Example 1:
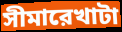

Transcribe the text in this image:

সীমারেখাটা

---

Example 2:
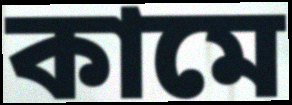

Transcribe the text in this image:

কামে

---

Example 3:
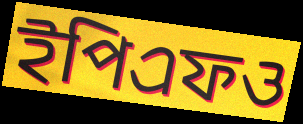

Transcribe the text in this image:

ইপিএফও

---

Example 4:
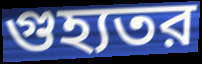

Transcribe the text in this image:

গুহ্যতর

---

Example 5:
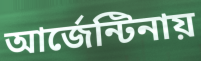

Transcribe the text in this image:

আর্জেন্টিনায়